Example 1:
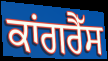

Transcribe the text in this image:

ਕਾਂਗਰੈੱਸ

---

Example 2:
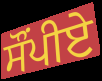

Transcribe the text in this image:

ਸੌਂਪੀਏ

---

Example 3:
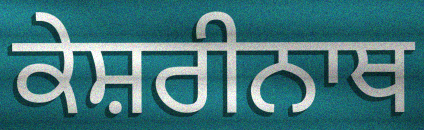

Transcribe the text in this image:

ਕੇਸ਼ਰੀਨਾਥ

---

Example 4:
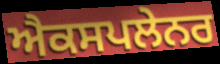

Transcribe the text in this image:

ਐਕਸਪਲੇਨਰ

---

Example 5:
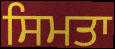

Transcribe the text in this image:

ਸਿਮਤਾ